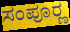
ಸಂಪೂರ್‍ಣ